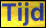
Tijd